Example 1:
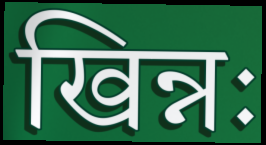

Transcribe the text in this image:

खिन्नः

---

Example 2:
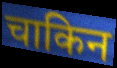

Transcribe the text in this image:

चाकिन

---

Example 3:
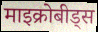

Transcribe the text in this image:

माइक्रोबीड्स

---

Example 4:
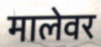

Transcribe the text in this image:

मालेवर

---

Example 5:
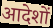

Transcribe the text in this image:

आदेशों